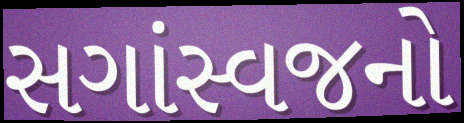
સગાંસ્વજનો